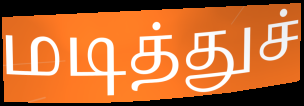
மடித்துச்